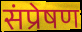
संप्रेषण